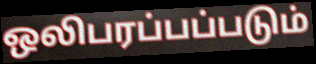
ஒலிபரப்பப்படும்